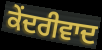
ਕੇਂਦਰੀਵਾਦ